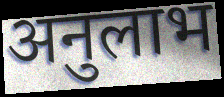
अनुलाभ